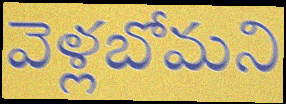
వెళ్లబోమని